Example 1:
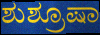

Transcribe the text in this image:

ಶುಶ್ರೂಷಾ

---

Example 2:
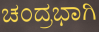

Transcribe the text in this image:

ಚಂದ್ರಭಾಗಿ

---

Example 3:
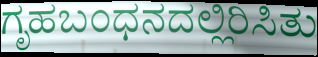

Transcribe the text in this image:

ಗೃಹಬಂಧನದಲ್ಲಿರಿಸಿತು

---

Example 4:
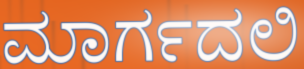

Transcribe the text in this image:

ಮಾರ್ಗದಲಿ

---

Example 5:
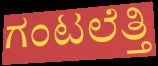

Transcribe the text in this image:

ಗಂಟಲೆತ್ತಿ